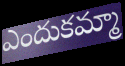
ఎందుకమ్మా